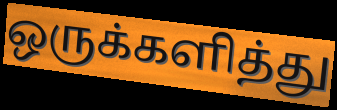
ஒருக்களித்து